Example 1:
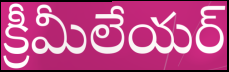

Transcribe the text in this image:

క్రీమీలేయర్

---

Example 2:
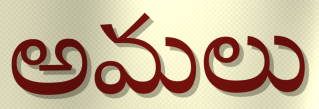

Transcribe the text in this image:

అమలు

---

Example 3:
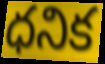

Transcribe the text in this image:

ధనిక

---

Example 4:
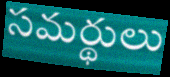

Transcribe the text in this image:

సమర్థులు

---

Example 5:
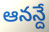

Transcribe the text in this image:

ఆనన్దే